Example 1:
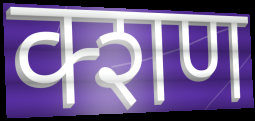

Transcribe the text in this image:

क्शण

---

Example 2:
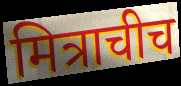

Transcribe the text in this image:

मित्राचीच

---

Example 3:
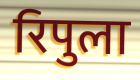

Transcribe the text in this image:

रिपुला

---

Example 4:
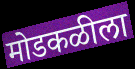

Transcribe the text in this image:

मोडकळीला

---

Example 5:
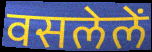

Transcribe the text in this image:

वसलेलें